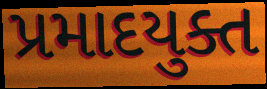
પ્રમાદયુક્ત